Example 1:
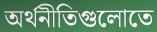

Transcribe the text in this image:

অর্থনীতিগুলোতে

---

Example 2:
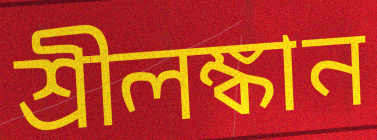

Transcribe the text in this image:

শ্রীলঙ্কান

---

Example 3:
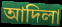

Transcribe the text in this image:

আদিলা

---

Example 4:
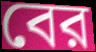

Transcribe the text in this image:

বের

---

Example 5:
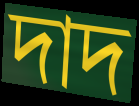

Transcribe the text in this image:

দাদ